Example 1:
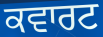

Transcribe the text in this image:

ਕਵਾਰਟ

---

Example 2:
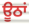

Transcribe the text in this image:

ਊਠਾਂ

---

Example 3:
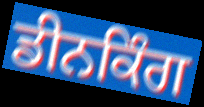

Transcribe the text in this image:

ਡੀਨਕਿੰਗ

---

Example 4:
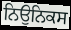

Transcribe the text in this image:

ਨਿਉਨਿਕਸ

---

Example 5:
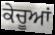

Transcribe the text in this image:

ਕੇਚੂਆਂ